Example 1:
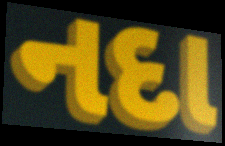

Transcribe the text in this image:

નદા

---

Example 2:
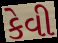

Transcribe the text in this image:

કેવી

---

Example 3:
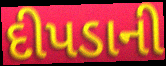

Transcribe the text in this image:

દીપડાની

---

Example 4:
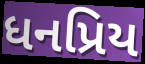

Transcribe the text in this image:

ધનપ્રિય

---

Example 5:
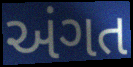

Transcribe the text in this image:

અંગત